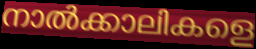
നാൽക്കാലികളെ